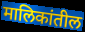
मालिकांतील